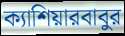
ক্যাশিয়ারবাবুর